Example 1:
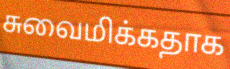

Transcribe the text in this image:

சுவைமிக்கதாக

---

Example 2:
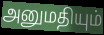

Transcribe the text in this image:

அனுமதியும்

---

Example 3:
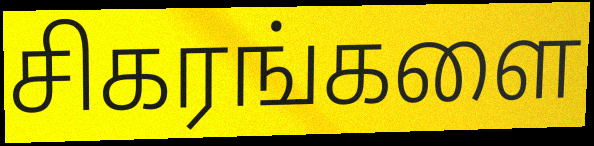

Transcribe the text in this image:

சிகரங்களை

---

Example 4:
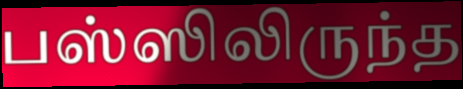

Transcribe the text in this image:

பஸ்ஸிலிருந்த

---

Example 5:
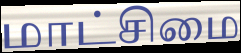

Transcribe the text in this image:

மாட்சிமை